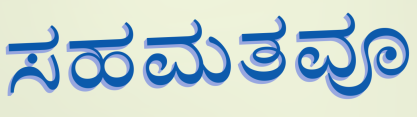
ಸಹಮತವೂ